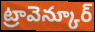
ట్రావెన్కూర్